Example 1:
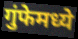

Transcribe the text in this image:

गुंफेमध्ये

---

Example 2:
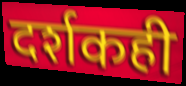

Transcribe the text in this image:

दर्शकही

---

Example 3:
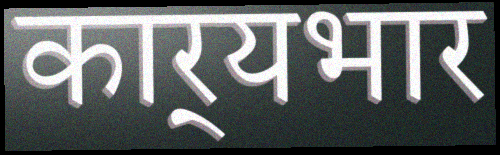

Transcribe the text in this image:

कार्यभार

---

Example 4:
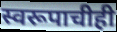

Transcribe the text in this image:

स्वरूपाचीही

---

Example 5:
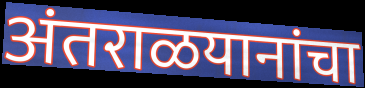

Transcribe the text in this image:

अंतराळयानांचा